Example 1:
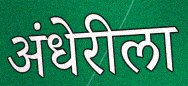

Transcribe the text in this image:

अंधेरीला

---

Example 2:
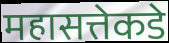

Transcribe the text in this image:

महासत्तेकडे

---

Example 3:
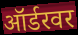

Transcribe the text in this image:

ऑर्डरवर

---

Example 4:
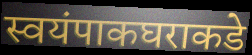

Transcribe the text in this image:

स्वयंपाकघराकडे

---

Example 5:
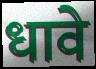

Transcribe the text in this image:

धावे